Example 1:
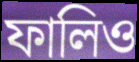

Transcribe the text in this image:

ফালিও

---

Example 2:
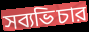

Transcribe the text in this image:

সব্যভিচার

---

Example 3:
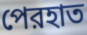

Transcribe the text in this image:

পেরহাত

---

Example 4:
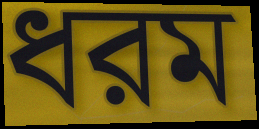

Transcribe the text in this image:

ধরম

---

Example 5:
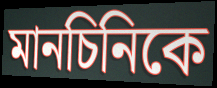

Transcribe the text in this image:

মানচিনিকে